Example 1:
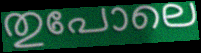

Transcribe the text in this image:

തുപോലെ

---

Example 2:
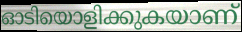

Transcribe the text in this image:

ഓടിയൊളിക്കുകയാണ്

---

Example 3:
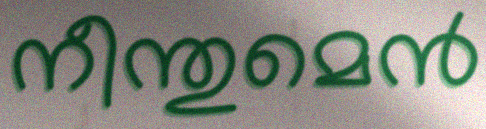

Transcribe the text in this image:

നീന്തുമെൻ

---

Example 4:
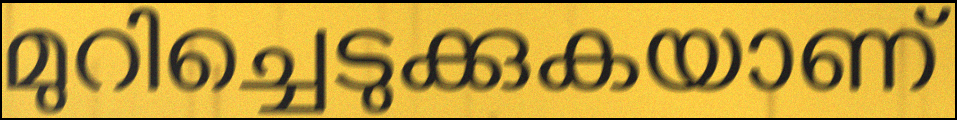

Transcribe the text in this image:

മുറിച്ചെടുക്കുകയാണ്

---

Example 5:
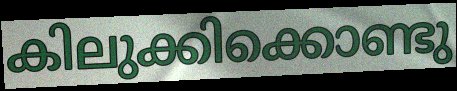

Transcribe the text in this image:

കിലുക്കിക്കൊണ്ടു